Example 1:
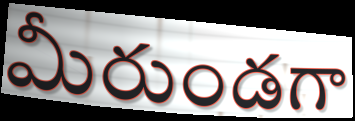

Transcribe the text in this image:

మీరుండగా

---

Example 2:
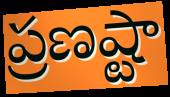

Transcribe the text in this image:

ప్రణష్టా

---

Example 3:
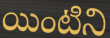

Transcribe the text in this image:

యింటిని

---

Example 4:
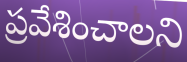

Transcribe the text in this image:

ప్రవేశించాలని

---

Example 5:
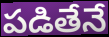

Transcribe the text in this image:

పడితేనే